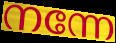
നന്നേ